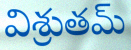
విశ్రుతమ్